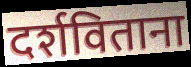
दर्शविताना